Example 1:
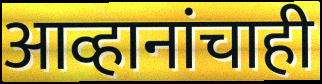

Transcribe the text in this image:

आव्हानांचाही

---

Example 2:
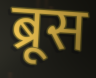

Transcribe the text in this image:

ब्रूस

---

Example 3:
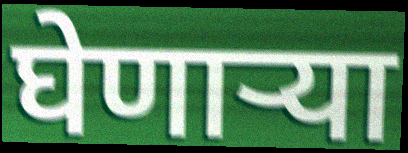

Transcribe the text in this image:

घेणाऱ्या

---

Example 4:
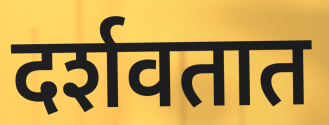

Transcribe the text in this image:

दर्शवतात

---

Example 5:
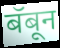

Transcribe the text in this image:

बॅबून